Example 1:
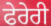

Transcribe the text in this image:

ਫੇਰੇਰੀ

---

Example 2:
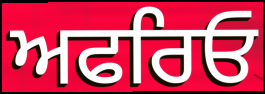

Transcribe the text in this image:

ਅਫਰਿਓ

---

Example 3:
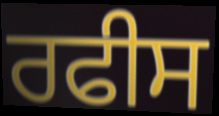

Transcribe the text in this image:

ਰਫੀਸ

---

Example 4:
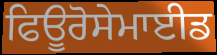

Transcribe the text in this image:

ਫਿਊਰੋਸੇਮਾਈਡ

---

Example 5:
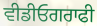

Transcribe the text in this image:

ਵੀਡੀਓਗਰਾਫੀ